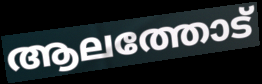
ആലത്തോട്